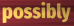
possibly